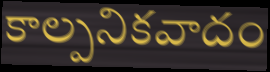
కాల్పనికవాదం